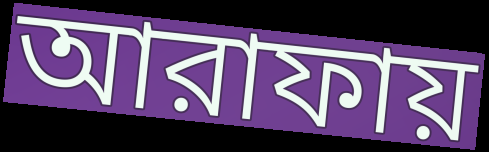
আরাফায়